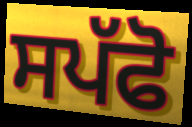
ਸਪੱਫੋ